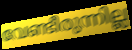
വേണ്ടീരുന്നില്ല